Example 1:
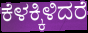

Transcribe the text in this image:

ಕೆಳಕ್ಕಿಳಿದರೆ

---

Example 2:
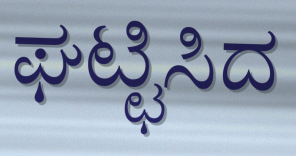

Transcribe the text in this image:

ಘಟ್ಟಿಸಿದ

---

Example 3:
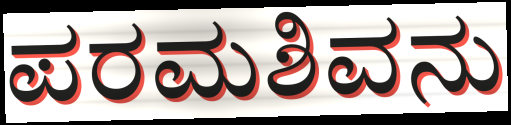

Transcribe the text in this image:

ಪರಮಶಿವನು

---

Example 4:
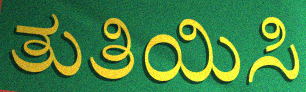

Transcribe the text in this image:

ತುತಿಯಿಸಿ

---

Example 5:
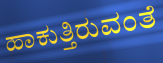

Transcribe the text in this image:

ಹಾಕುತ್ತಿರುವಂತೆ